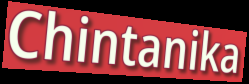
Chintanika